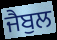
ਜੈਬੁਲ